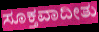
ಸೂಕ್ತವಾದೀತು